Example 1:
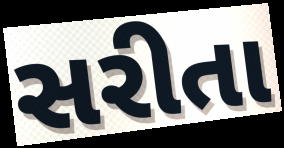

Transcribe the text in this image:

સરીતા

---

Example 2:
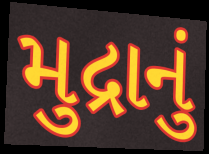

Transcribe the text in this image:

મુદ્રાનું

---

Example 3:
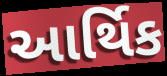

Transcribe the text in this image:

આર્થિક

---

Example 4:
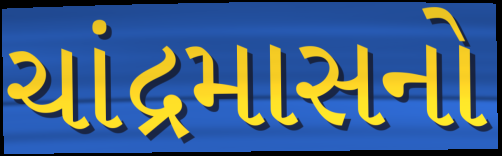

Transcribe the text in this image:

ચાંદ્રમાસનો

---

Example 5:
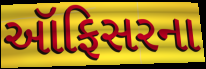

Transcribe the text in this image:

ઑફિસરના